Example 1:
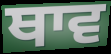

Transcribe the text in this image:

ਥਾਵ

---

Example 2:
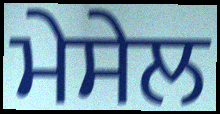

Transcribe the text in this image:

ਮੇਸੇਲ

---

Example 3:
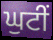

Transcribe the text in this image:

ਘੁਟੀਂ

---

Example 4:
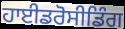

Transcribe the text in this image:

ਹਾਈਡਰੋਸੀਡਿੰਗ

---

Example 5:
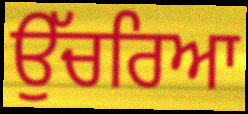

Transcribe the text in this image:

ਉੱਚਰਿਆ